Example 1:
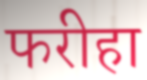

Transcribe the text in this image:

फरीहा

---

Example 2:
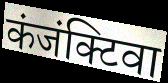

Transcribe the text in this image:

कंजंक्टिवा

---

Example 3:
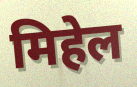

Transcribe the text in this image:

मिहेल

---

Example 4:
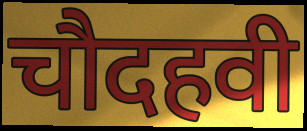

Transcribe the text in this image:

चौदहवी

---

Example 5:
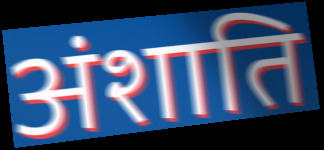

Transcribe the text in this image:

अंशाति